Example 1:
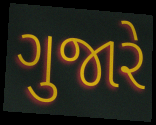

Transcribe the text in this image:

ગુજારે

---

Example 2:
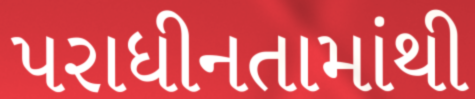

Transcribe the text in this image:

પરાધીનતામાંથી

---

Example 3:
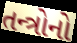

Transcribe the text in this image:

તન્ત્રોનો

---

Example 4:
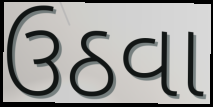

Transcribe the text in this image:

ઉઠવા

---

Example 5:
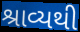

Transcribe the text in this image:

શ્રાવ્યથી